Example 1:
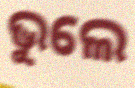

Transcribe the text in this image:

ଭୁଲେ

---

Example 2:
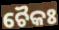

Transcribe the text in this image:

ଚୈକଃ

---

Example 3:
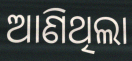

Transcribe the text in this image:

ଆଣିଥିଲା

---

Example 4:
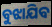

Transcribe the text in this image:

ବୁଝାଯିବ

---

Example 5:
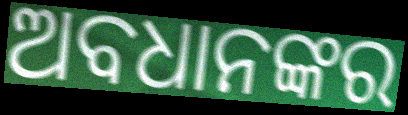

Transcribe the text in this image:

ଅବଧାନଙ୍କର